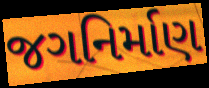
જગનિર્માણ